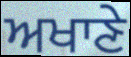
ਅਖਾਣੇ